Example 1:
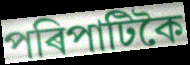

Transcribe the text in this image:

পৰিপাটিকৈ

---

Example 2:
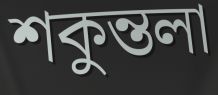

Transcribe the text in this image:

শকুন্তলা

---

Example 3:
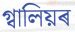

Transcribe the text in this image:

গ্বালিয়ৰ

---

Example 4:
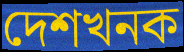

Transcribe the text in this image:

দেশখনক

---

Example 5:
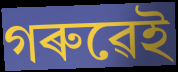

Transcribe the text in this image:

গৰুৱেই